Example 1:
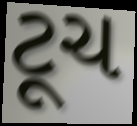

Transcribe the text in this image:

ટૂચ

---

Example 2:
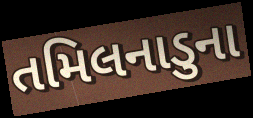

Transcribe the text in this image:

તમિલનાડુના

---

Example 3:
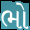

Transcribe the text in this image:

ભો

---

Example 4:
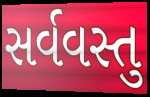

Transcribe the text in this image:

સર્વવસ્તુ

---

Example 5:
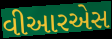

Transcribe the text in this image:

વીઆરએસ